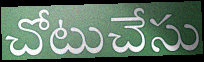
చోటుచేసు